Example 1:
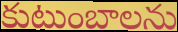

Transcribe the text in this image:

కుటుంబాలను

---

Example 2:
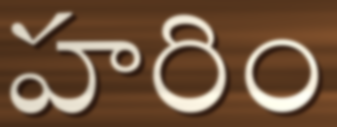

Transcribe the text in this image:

హరిం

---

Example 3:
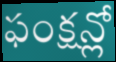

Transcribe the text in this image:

ఫంక్షన్లో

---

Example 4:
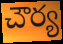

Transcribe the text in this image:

చౌర్య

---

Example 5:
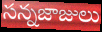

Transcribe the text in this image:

సన్నజాజులు